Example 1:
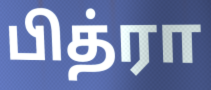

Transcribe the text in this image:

பித்ரா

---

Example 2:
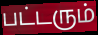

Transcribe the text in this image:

பட்டரும்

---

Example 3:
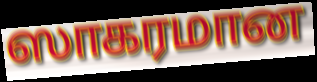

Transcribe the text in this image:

ஸாகரமான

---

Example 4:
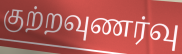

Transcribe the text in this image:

குற்றவுணர்வு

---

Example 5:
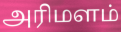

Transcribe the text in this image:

அரிமளம்